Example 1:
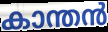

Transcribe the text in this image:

കാന്തൻ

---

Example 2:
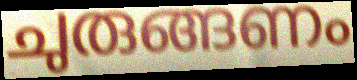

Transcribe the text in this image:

ചുരുങ്ങണം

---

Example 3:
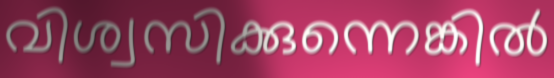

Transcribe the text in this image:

വിശ്വസിക്കുന്നെങ്കിൽ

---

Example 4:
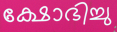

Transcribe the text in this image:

ക്ഷോഭിച്ചു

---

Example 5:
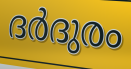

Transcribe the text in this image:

ദർദുരം